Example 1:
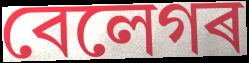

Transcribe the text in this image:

বেলেগৰ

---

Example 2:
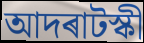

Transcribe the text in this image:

আদৰাটস্কী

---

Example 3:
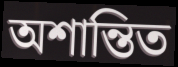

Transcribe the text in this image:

অশান্তিত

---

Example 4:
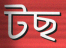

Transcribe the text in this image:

টছ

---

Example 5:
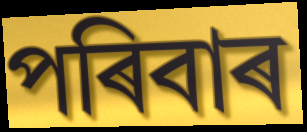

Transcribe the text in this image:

পৰিবাৰ